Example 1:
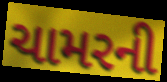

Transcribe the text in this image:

ચામરની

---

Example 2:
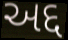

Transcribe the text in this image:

અદ્દ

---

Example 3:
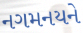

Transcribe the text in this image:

નગમનયને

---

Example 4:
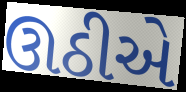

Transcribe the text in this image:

ઊઠીએ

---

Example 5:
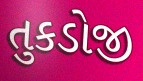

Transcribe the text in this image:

તુકડોજી